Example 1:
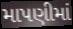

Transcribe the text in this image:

માપણીમાં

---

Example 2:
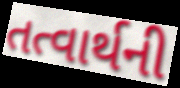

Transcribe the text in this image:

તત્વાર્થની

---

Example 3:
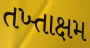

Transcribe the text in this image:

તખ્તાક્ષમ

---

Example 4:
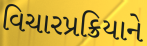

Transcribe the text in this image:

વિચારપ્રક્રિયાને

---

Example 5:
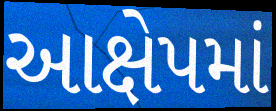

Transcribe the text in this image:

આક્ષેપમાં